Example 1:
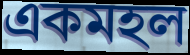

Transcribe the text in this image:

একমহল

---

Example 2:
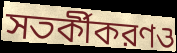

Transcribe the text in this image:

সতর্কীকরণও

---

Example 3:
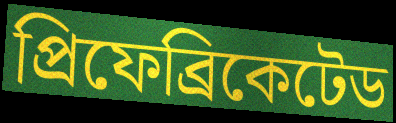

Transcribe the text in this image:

প্রিফেব্রিকেটেড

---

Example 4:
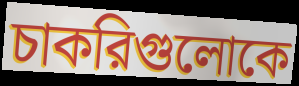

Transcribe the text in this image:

চাকরিগুলোকে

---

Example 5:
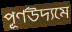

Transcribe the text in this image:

পূর্ণউদ্যমে